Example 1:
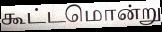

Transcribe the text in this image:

கூட்டமொன்று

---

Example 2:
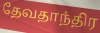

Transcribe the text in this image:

தேவதாந்திர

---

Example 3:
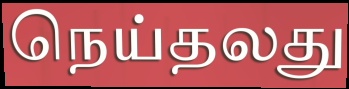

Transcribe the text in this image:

நெய்தலது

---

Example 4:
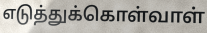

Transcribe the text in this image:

எடுத்துக்கொள்வாள்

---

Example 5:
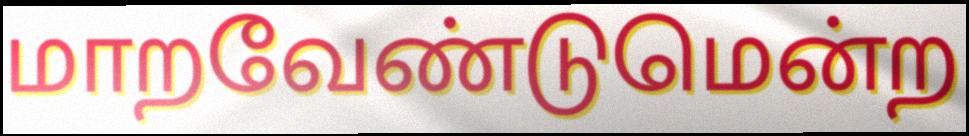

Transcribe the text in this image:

மாறவேண்டுமென்ற